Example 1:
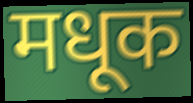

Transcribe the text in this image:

मधूक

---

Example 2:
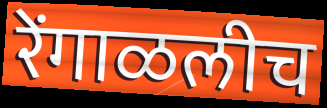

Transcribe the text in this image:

रेंगाळलीच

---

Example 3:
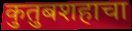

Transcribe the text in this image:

कुतुबशहाचा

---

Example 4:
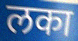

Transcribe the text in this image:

लका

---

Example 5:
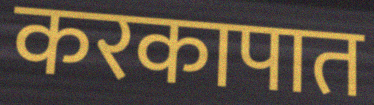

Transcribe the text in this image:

करकापात